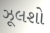
ઝૂલશો